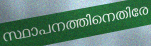
സ്ഥാപനത്തിനെതിരേ